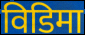
विडिमा